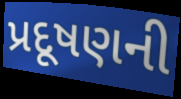
પ્રદૂષણની